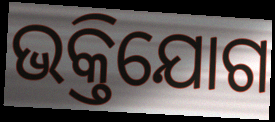
ଭକ୍ତିଯୋଗ